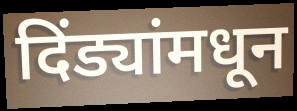
दिंड्यांमधून